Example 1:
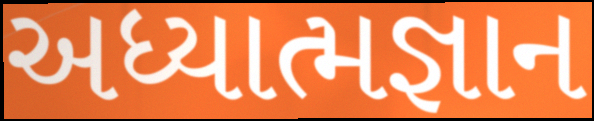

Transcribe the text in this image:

અધ્યાત્મજ્ઞાન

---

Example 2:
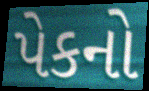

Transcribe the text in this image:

પેકનો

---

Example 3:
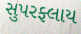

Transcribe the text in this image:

સુપરફ્લાય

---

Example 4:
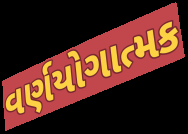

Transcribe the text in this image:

વર્ણયોગાત્મક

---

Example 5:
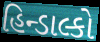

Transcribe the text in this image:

હિન્ડાલ્કો